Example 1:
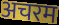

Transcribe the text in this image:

अचरम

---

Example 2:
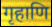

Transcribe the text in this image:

गृहाणि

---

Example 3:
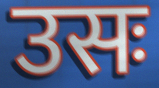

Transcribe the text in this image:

उसः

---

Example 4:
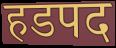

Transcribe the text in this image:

हडपद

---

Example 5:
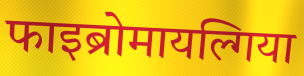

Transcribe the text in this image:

फाइब्रोमायल्गिया